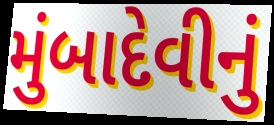
મુંબાદેવીનું